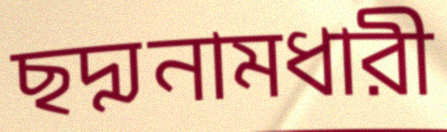
ছদ্মনামধারী